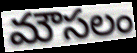
మౌసలం